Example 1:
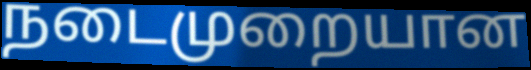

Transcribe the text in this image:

நடைமுறையான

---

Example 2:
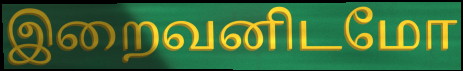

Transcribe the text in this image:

இறைவனிடமோ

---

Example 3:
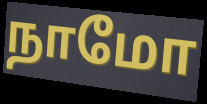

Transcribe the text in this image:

நாமோ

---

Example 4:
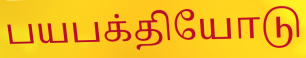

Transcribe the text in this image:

பயபக்தியோடு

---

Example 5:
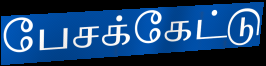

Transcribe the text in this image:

பேசக்கேட்டு